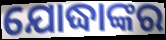
ଯୋଦ୍ଧାଙ୍କର